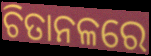
ଚିତାନଳରେ